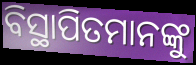
ବିସ୍ଥାପିତମାନଙ୍କୁ